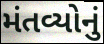
મંતવ્યોનું